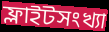
ফ্লাইটসংখ্যা